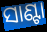
ସାଣ୍ଟା